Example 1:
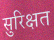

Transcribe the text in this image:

सुरिक्षत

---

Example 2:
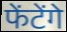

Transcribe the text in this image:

फेंटेंगे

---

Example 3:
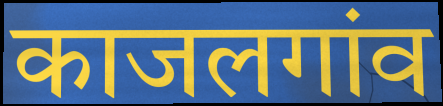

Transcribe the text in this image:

काजलगांव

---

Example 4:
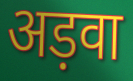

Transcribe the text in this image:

अड़वा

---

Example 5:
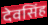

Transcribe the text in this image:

देवसिंह